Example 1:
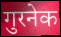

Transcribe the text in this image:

गुरनेक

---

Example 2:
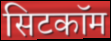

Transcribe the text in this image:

सिटकॉम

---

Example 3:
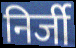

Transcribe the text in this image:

निर्जी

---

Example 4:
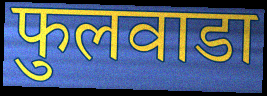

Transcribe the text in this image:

फुलवाडा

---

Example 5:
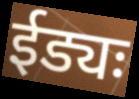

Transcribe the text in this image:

ईड्यः